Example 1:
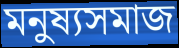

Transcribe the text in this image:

মনুষ্যসমাজ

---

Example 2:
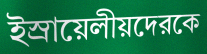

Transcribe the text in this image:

ইস্রায়েলীয়দেরকে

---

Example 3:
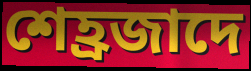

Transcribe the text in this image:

শেহ্রজাদে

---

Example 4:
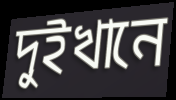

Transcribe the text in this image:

দুইখানে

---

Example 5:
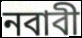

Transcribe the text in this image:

নবাবী